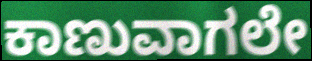
ಕಾಣುವಾಗಲೇ